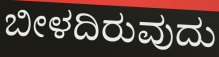
ಬೀಳದಿರುವುದು